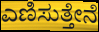
ಎಣಿಸುತ್ತೇನೆ